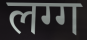
लग्ग